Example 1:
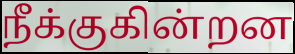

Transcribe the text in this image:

நீக்குகின்றன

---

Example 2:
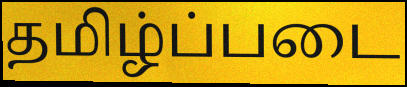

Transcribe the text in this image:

தமிழ்ப்படை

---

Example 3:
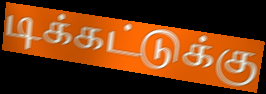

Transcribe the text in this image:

டிக்கட்டுக்கு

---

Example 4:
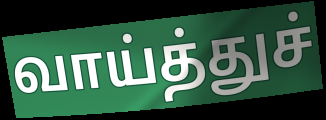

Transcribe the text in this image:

வாய்த்துச்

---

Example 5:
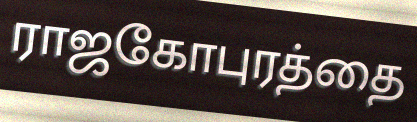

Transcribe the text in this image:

ராஜகோபுரத்தை